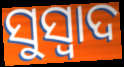
ସୁସ୍ୱାଦ